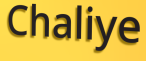
Chaliye